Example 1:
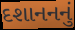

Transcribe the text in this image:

દશાનનનું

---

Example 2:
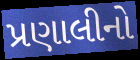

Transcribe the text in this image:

પ્રણાલીનો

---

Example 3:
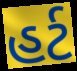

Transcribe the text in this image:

હર્ટ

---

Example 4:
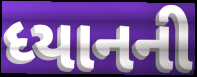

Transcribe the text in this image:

ધ્યાનની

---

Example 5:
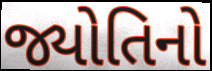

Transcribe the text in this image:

જ્યોતિનો